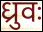
ध्रुवः